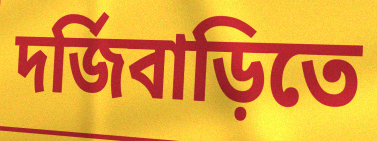
দর্জিবাড়িতে